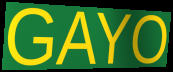
GAYO